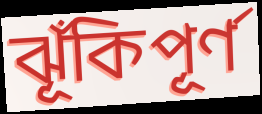
ঝূঁকিপূর্ণ